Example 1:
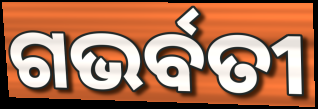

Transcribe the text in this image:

ଗଭର୍ବତୀ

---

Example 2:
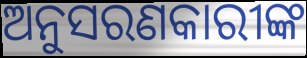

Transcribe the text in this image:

ଅନୁସରଣକାରୀଙ୍କ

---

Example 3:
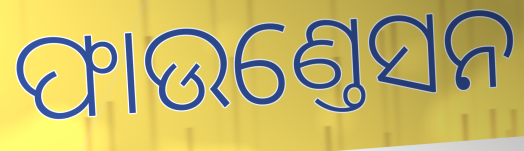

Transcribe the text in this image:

ଫାଉଣ୍ତେସନ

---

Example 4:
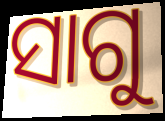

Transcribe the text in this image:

ସାଗୁ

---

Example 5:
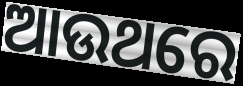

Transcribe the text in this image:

ଆଉଥରେ